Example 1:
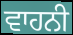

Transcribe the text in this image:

ਵਾਹਨੀ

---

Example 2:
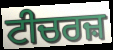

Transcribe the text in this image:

ਟੀਚਰਜ਼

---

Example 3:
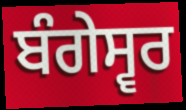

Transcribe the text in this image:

ਬੰਗੇਸ੍ਵਰ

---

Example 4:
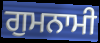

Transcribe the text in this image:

ਗੁਮਨਾਮੀ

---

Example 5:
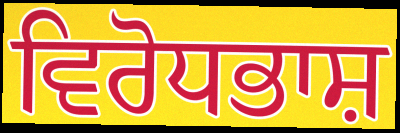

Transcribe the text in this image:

ਵਿਰੋਧਭਾਸ਼